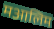
मआलिम